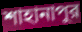
শাহানাপুর